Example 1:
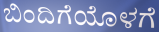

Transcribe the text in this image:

ಬಿಂದಿಗೆಯೊಳಗೆ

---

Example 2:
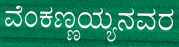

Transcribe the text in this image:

ವೆಂಕಣ್ಣಯ್ಯನವರ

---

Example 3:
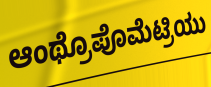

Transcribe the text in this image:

ಆಂಥ್ರೊಪೊಮೆಟ್ರಿಯು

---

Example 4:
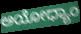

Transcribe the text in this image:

ಅಯೋಧ್ಯಾಂ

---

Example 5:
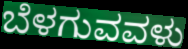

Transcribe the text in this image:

ಬೆಳಗುವವಳು